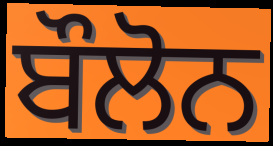
ਬੌਲੋਨ